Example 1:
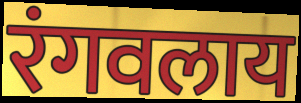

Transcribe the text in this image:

रंगवलाय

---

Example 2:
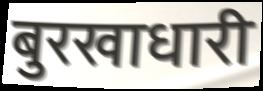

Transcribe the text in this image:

बुरखाधारी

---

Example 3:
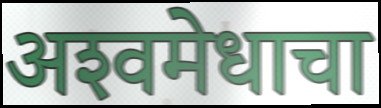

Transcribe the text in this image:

अश्‍वमेधाचा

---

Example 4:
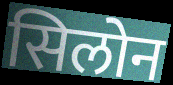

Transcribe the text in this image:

सिलोन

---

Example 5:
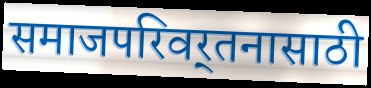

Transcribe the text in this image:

समाजपरिवर्तनासाठी